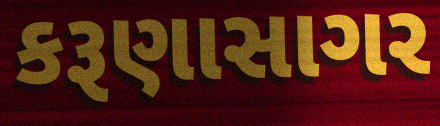
કરૂણાસાગર